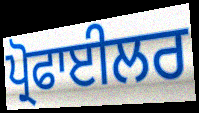
ਪ੍ਰੋਫਾਈਲਰ